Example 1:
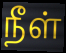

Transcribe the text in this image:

நீள்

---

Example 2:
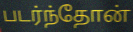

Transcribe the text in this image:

படர்ந்தோன்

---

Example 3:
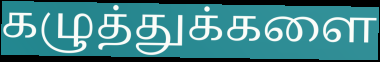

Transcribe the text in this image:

கழுத்துக்களை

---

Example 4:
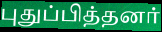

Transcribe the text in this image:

புதுப்பித்தனர்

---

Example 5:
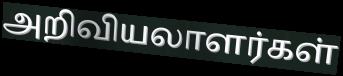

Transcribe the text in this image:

அறிவியலாளர்கள்